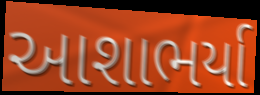
આશાભર્યા